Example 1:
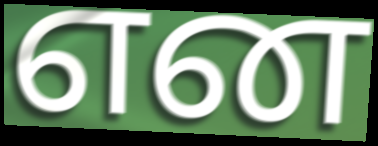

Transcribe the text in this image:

என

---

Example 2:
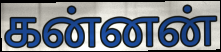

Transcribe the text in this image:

கன்னன்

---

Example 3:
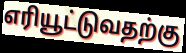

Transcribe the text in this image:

எரியூட்டுவதற்கு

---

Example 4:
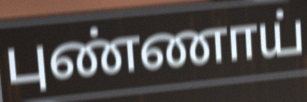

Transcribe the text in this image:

புண்ணாய்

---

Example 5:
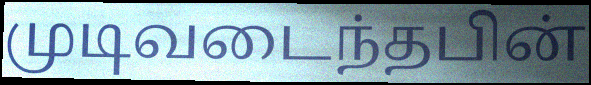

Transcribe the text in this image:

முடிவடைந்தபின்